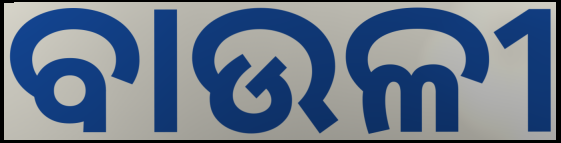
ବାଉଳୀ